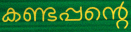
കണ്ടപ്പന്റെ